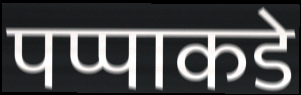
पप्पाकडे